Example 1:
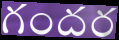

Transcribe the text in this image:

గందర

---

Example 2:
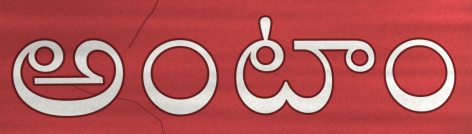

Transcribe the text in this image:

అంటాం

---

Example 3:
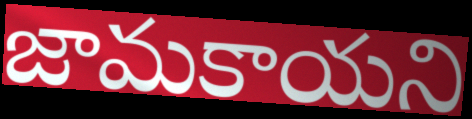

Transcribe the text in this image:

జామకాయని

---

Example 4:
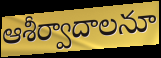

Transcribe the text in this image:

ఆశీర్వాదాలనూ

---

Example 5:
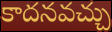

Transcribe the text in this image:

కాదనవచ్చు